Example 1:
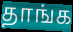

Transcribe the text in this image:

தாங்க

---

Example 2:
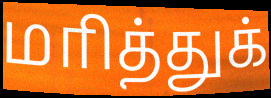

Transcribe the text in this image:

மரித்துக்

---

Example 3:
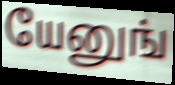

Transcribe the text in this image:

யேனுங்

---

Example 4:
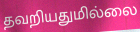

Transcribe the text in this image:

தவறியதுமில்லை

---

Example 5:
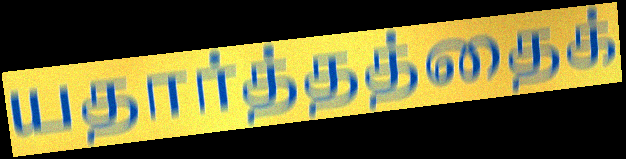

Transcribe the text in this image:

யதார்த்தத்தைக்